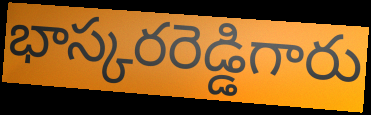
భాస్కరరెడ్డిగారు